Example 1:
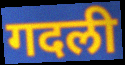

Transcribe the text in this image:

गदली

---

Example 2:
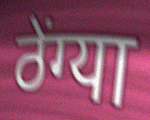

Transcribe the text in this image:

ठेंग्या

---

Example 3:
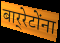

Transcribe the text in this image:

बार्रेटोंना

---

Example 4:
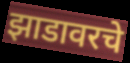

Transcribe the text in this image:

झाडावरचे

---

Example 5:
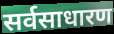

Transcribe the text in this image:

सर्वसाधारण